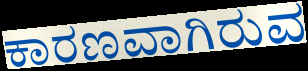
ಕಾರಣವಾಗಿರುವ